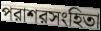
পরাশরসংহিতা